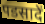
पडसादें